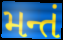
મન્તં